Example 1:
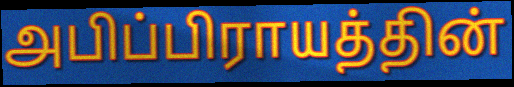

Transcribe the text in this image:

அபிப்பிராயத்தின்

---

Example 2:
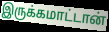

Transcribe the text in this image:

இருக்கமாட்டான்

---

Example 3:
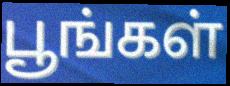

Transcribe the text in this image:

பூங்கள்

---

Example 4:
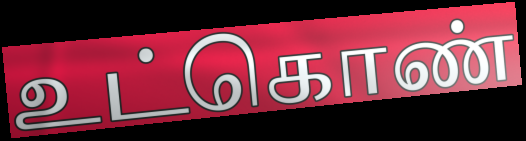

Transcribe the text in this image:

உட்கொண்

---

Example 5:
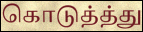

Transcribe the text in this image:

கொடுத்த்து